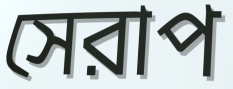
সেরাপ